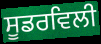
ਸੂਡਰਵਿਲੀ